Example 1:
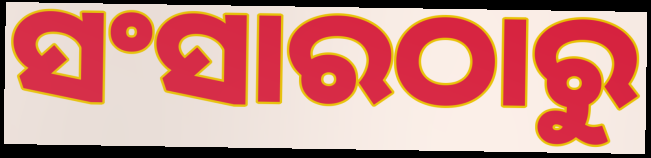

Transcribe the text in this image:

ସଂସାରଠାରୁ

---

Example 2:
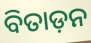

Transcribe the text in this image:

ବିତାଡ଼ନ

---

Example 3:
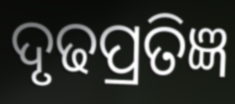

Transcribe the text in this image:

ଦୃଢପ୍ରତିଜ୍ଞ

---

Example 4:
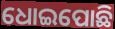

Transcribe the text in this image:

ଧୋଇପୋଛି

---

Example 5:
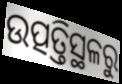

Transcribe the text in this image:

ଉତ୍ପତ୍ତିସ୍ଥଳରୁ